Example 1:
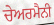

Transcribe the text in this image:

ਚੇਅਰਮੈਨੀ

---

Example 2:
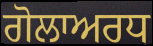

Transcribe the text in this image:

ਗੋਲਾਅਰਧ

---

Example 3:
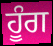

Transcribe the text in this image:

ਹੂੰਗ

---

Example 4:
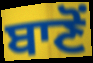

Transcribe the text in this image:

ਬਾਣੋਂ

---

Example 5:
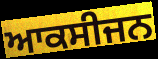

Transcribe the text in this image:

ਆਕਸੀਜਨ